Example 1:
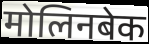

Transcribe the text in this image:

मोलिनबेक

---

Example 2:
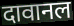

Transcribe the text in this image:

दावानल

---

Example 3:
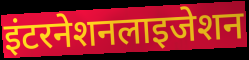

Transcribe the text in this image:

इंटरनेशनलाइजेशन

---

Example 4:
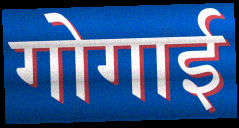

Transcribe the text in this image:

गोगाई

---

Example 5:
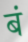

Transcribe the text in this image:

बं